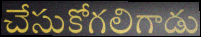
చేసుకోగలిగాడు